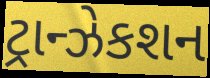
ટ્રાન્ઝેકશન